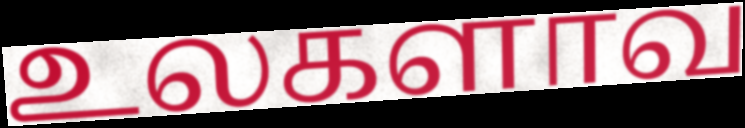
உலகளாவ